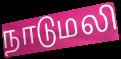
நாடுமலி